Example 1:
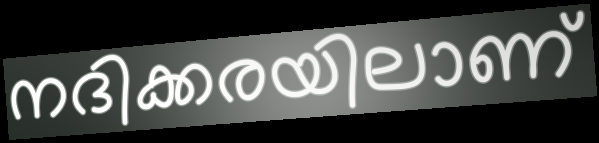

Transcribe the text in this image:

നദിക്കരയിലാണ്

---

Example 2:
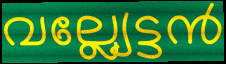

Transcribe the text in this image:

വല്ല്യേട്ടൻ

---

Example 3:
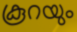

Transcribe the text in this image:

കൂറയും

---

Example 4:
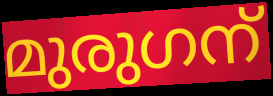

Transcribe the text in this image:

മുരുഗന്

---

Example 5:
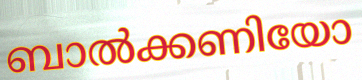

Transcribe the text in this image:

ബാൽക്കണിയോ